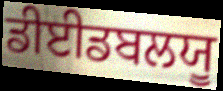
ਡੀਈਡਬਲਯੂ